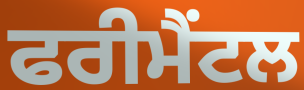
ਫਰੀਮੈਂਟਲ